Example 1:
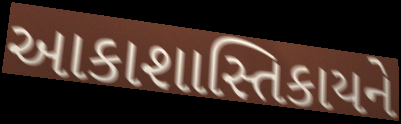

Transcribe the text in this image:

આકાશાસ્તિકાયને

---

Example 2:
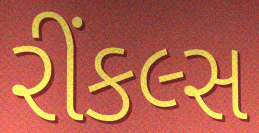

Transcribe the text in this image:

રીંકલ્સ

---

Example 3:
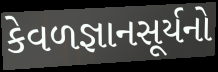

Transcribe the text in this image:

કેવળજ્ઞાનસૂર્યનો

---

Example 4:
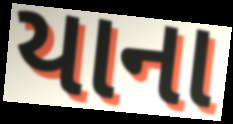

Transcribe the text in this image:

યાના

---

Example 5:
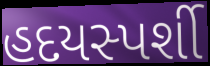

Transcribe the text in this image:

હદયસ્પર્શી